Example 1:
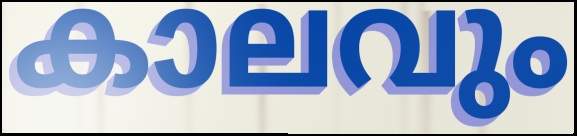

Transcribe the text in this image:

കാലവും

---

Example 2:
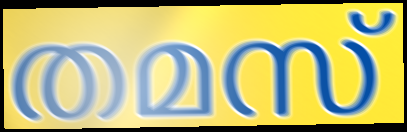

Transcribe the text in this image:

തമസ്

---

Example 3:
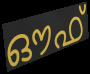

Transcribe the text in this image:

ഔഫ്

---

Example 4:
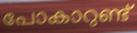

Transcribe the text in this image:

പോകാറുണ്ട്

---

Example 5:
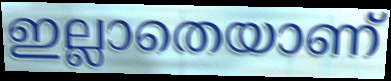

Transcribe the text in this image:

ഇല്ലാതെയാണ്